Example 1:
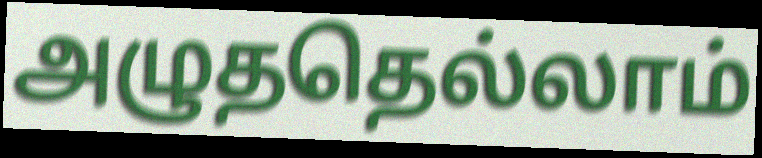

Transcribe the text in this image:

அழுததெல்லாம்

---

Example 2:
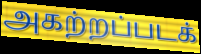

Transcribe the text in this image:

அகற்றப்படக்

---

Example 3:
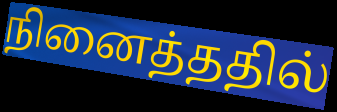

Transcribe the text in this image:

நினைத்ததில்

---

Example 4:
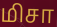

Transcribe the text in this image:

மிசா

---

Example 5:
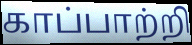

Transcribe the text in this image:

காப்பாற்றி